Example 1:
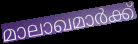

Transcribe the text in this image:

മാലാഖമാർക്ക്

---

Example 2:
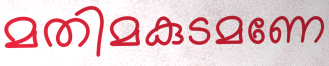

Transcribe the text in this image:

മതിമകുടമണേ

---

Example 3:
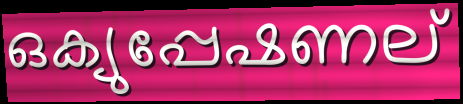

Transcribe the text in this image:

ഒക്യുപ്പേഷണല്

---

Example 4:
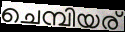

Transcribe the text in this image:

ചെമ്പിയര്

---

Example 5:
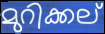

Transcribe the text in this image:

മുറിക്കല്